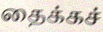
தைக்கச்